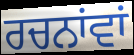
ਰਚਨਾਂਵਾਂ